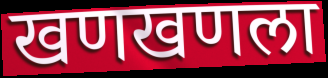
खणखणला